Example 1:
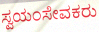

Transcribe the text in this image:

ಸ್ವಯಂಸೇವಕರು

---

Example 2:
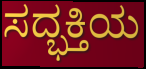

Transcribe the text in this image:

ಸದ್ಭಕ್ತಿಯ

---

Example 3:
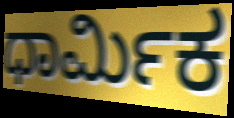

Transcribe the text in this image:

ಧಾರ್ಮಿಕ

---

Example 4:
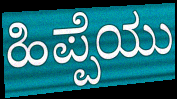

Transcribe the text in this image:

ಹಿಪ್ಪೆಯು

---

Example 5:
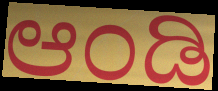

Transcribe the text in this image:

ಆಂಡಿ